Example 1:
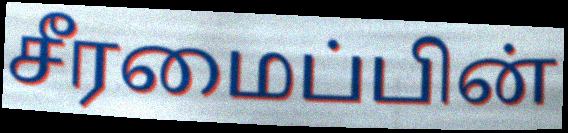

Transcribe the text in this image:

சீரமைப்பின்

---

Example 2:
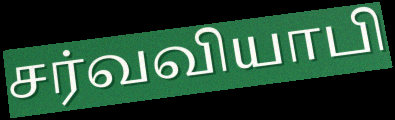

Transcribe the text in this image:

சர்வவியாபி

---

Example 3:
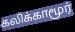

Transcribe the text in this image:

கலிக்காமூர்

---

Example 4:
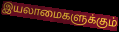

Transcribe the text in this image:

இயலாமைகளுக்கும்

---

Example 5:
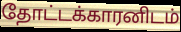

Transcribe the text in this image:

தோட்டக்காரனிடம்